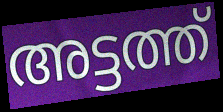
അട്ടത്ത്